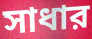
সাধার